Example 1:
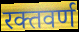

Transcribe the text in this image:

रक्तवर्ण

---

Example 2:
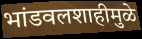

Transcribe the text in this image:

भांडवलशाहीमुळे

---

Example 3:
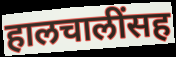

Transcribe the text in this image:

हालचालींसह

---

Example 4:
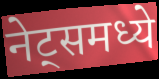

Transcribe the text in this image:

नेट्समध्ये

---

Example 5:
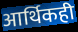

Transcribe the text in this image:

आर्थिकही